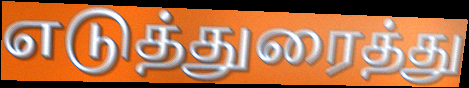
எடுத்துரைத்து